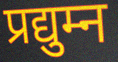
प्रद्युम्न